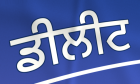
ਡੀਲੀਟ